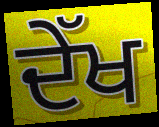
ਦੇੱਖ